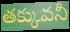
తక్కువనీ